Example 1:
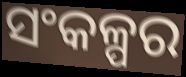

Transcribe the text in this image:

ସଂକଳ୍ପର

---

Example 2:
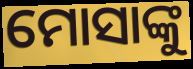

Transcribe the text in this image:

ମୋସାଙ୍କୁ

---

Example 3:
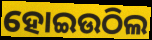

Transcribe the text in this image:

ହୋଇଉଠିଲ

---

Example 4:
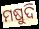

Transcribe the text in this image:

ମଷୁଦି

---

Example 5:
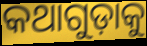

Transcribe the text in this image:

କଥାଗୁଡ଼ାକୁ